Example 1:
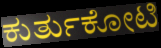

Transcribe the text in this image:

ಕುರ್ತುಕೋಟಿ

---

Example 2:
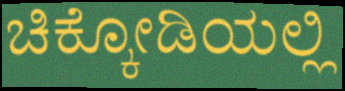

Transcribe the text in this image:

ಚಿಕ್ಕೋಡಿಯಲ್ಲಿ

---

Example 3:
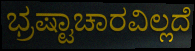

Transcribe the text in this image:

ಭ್ರಷ್ಟಾಚಾರವಿಲ್ಲದೆ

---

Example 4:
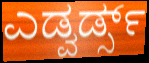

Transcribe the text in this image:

ಎಡ್ವರ್ಡ್ಸ್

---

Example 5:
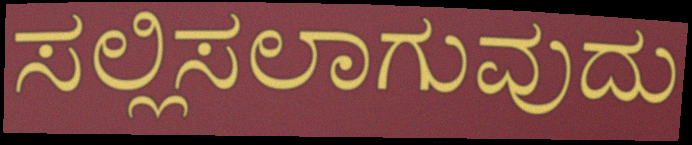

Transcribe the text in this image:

ಸಲ್ಲಿಸಲಾಗುವುದು